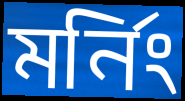
মর্নিং